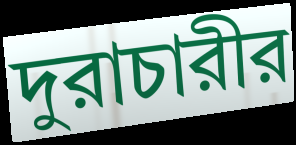
দুরাচারীর